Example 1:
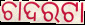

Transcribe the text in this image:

ଚାଦରଟା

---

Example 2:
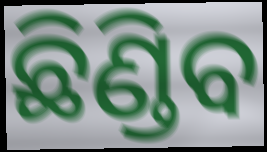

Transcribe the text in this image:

ଛିଣ୍ଡିବ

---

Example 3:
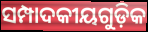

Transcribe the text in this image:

ସମ୍ପାଦକୀୟଗୁଡ଼ିକ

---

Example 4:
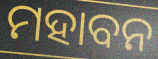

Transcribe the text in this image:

ମହାବନ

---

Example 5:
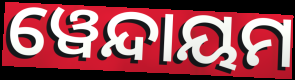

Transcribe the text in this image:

ୱେନ୍ଦାୟମ